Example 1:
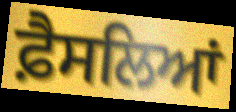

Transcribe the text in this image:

ਫ਼ੈਸਲਿਆਂ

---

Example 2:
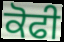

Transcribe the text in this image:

ਕੋਫੀ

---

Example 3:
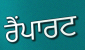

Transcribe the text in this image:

ਰੈਂਪਾਰਟ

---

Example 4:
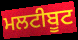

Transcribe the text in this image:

ਮਲਟੀਬੂਟ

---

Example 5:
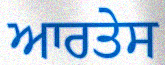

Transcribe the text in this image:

ਆਰਤੇਸ